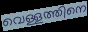
വെള്ളത്തിനെ